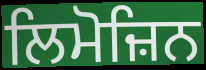
ਲਿਮੋਜ਼ਿਨ